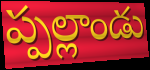
ప్పల్లాండు